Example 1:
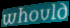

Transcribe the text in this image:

whould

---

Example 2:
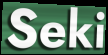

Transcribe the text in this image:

Seki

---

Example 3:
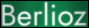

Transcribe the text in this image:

Berlioz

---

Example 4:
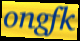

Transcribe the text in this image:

ongfk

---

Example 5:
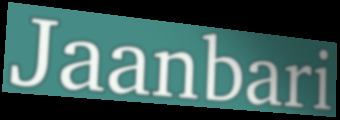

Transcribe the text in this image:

Jaanbari